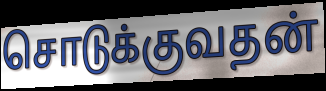
சொடுக்குவதன்